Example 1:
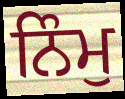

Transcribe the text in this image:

ਨਿੰਮੁ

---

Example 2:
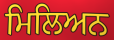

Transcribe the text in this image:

ਮਿਲਿਅਨ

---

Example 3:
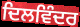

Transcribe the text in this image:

ਦਿਲਵਿੰਦਰ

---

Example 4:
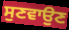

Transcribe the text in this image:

ਸੁਣਵਾਉਣ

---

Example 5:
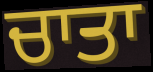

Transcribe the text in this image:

ਚਾਤਾ